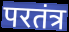
परतंत्र